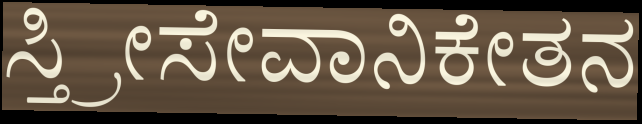
ಸ್ತ್ರೀಸೇವಾನಿಕೇತನ